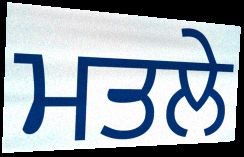
ਮਤਲੇ